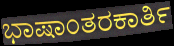
ಭಾಷಾಂತರಕಾರ್ತಿ